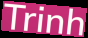
Trinh